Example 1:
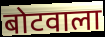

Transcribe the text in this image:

बोटवाला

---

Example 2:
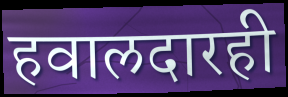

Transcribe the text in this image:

हवालदारही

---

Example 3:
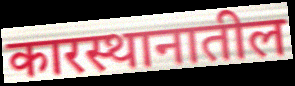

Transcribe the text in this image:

कारस्थानातील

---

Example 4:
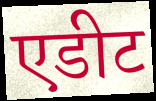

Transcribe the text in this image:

एडीट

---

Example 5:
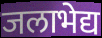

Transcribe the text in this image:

जलाभेद्य